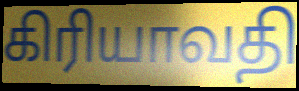
கிரியாவதி